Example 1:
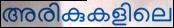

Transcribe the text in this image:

അരികുകളിലെ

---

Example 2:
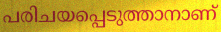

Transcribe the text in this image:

പരിചയപ്പെടുത്താനാണ്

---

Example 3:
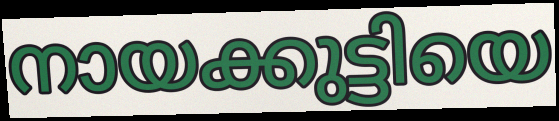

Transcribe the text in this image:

നായക്കുട്ടിയെ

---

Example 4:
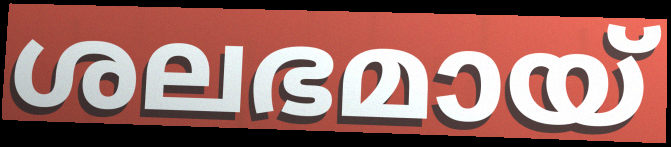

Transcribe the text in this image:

ശലഭമായ്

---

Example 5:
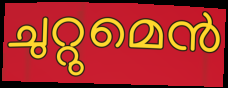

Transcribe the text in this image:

ചുറ്റുമെൻ